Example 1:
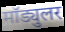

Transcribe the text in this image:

मॉड्युलर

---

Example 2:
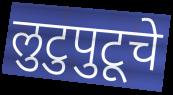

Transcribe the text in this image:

लुटुपुटूचे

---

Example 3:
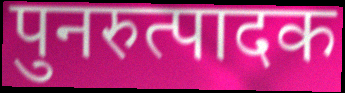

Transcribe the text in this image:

पुनरुत्पादक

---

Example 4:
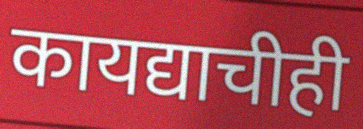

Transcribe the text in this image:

कायद्याचीही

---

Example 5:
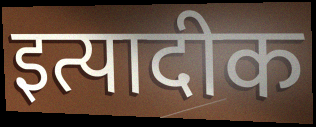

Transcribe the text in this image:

इत्यादीक